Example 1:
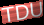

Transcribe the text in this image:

TDU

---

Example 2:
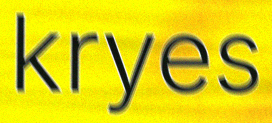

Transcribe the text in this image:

kryes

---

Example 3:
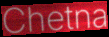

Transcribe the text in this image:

Chetna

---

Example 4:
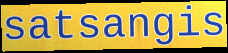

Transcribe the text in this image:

satsangis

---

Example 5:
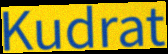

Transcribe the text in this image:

Kudrat